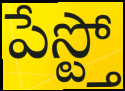
పేస్ట్తో